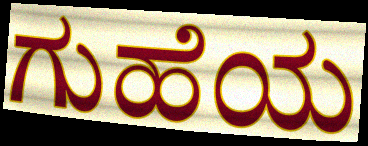
ಗುಹೆಯ